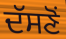
ਦੱਸਣੋਂ